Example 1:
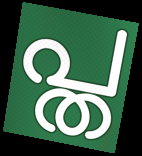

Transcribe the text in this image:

പ്ത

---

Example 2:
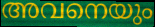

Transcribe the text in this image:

അവനെയും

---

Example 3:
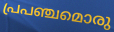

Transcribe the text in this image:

പ്രപഞ്ചമൊരു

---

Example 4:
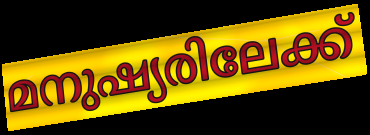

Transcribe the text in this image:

മനുഷ്യരിലേക്ക്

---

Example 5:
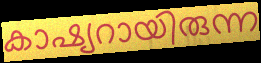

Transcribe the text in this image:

കാഷ്യറായിരുന്ന